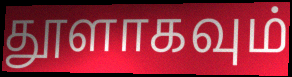
தூளாகவும்